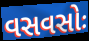
વસવસોઃ